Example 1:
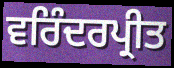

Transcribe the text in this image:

ਵਰਿੰਦਰਪ੍ਰੀਤ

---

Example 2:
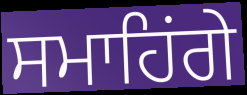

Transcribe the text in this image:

ਸਮਾਹਿਂਗੇ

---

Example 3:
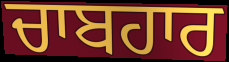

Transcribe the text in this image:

ਚਾਬਹਾਰ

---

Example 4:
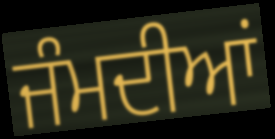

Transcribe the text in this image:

ਜੰਮਦੀਆਂ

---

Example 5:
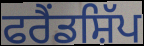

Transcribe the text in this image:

ਫਰੈਂਡਸ਼ਿੱਪ